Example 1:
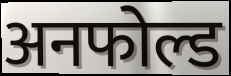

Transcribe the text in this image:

अनफोल्ड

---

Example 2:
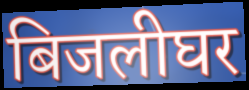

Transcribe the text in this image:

बिजलीघर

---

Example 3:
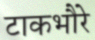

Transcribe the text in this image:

टाकभौरे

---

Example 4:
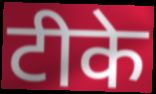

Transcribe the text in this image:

टीके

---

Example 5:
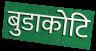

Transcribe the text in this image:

बुडाकोटि